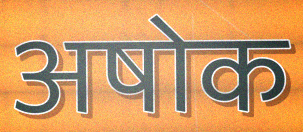
अषोक